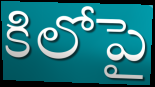
కిలోపై